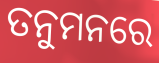
ତନୁମନରେ